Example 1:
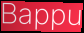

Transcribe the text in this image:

Bappu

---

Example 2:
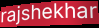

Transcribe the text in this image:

rajshekhar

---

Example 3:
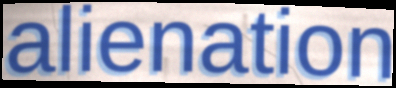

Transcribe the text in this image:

alienation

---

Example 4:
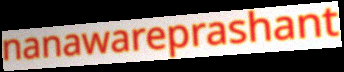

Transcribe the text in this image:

nanawareprashant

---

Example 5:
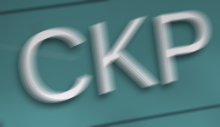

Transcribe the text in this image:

CKP